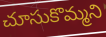
చూసుకొమ్మని